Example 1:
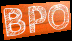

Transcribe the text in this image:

BPO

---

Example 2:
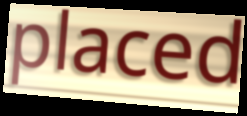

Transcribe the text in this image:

placed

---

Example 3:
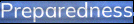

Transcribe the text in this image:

Preparedness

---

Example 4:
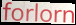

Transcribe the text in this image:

forlorn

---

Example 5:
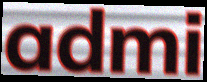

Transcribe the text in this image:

admi